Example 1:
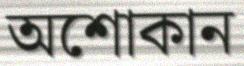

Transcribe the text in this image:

অশোকান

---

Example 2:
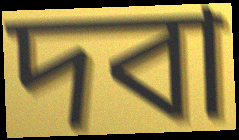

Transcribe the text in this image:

দবা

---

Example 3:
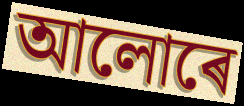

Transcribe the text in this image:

আলোৰে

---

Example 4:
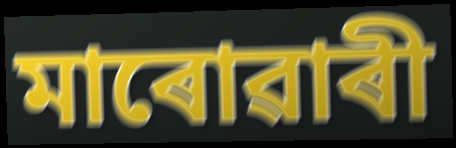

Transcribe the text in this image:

মাৰোৱাৰী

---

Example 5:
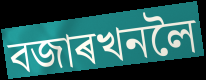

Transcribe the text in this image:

বজাৰখনলৈ